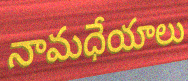
నామధేయాలు